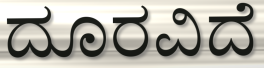
ದೂರವಿದೆ